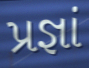
પ્રજ્ઞાં